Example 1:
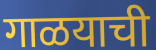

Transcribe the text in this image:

गाळयाची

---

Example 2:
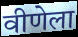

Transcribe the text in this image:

वीणेला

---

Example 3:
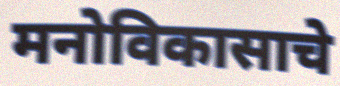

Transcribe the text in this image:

मनोविकासाचे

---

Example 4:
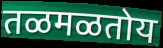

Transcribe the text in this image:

तळमळतोय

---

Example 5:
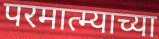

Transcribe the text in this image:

परमात्म्याच्या